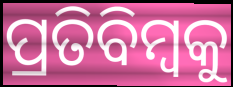
ପ୍ରତିବିମ୍ବକୁ